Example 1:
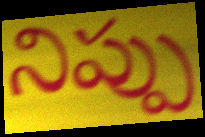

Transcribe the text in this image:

నిప్పు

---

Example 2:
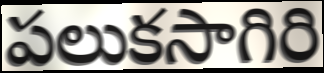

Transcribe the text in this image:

పలుకసాగిరి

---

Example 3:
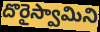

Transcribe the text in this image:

దొరైస్వామిని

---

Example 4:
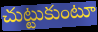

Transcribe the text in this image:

చుట్టుకుంటూ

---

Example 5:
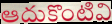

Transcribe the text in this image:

ఆదుకొంటివి